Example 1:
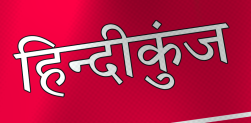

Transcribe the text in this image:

हिन्दीकुंज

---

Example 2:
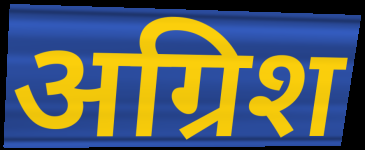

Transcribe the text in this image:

अग्रिश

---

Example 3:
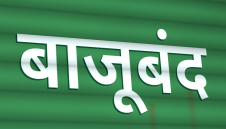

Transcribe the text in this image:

बाजूबंद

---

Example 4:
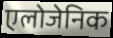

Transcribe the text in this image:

एलोजेनिक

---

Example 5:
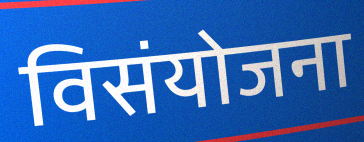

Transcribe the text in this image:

विसंयोजना